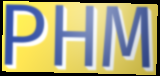
PHM